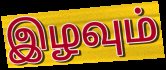
இழவும்